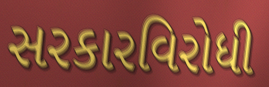
સરકારવિરોધી